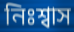
নিঃশ্বাস